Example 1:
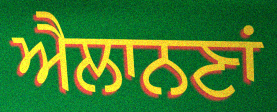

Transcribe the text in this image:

ਐਲਾਨਣਾਂ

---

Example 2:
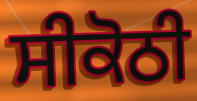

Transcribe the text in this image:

ਸੀਕੋਠੀ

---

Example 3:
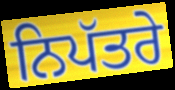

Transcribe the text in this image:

ਨਿਪੱਤਰੇ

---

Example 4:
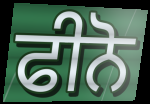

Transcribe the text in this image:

ਫੀਨੋ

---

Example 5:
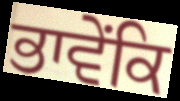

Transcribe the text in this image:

ਭਾਵੇਂਕਿ